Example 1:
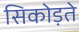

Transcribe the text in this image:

सिकोड़ते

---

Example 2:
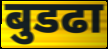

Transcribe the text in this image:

बुडढा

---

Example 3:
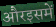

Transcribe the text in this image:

औरइसमें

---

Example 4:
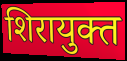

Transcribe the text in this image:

शिरायुक्त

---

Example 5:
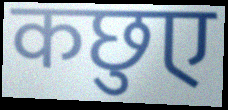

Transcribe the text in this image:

कछुए